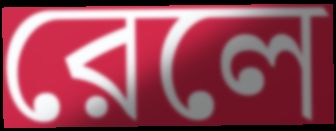
রেলে